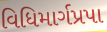
વિધિમાર્ગપ્રપા